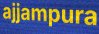
ajjampura